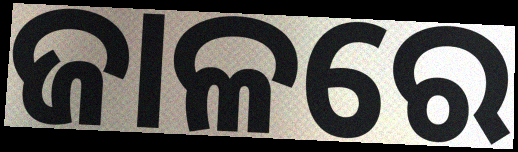
ଜାଳରେ